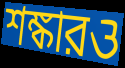
শঙ্কারও